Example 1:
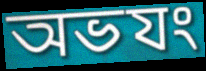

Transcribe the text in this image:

অভযং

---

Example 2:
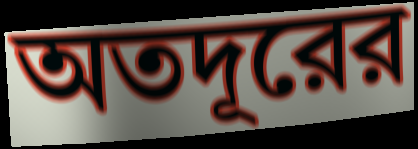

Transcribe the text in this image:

অতদূরের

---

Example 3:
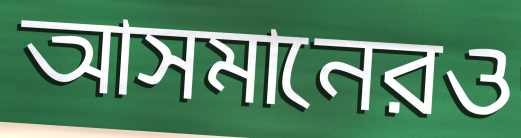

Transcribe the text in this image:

আসমানেরও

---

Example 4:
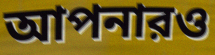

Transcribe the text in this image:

আপনারও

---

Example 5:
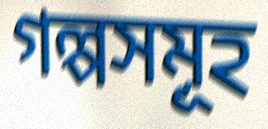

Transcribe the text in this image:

গল্পসমূহ